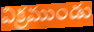
విక్రముండు